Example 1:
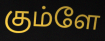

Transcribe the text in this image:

கும்ளே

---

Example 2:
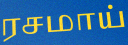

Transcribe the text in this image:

ரசமாய்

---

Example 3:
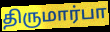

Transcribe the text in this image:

திருமார்பா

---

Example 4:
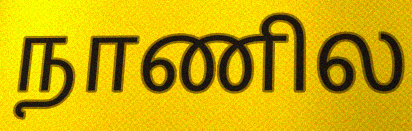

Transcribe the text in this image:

நாணில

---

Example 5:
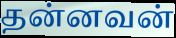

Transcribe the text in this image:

தன்னவன்